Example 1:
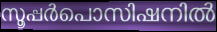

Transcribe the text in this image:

സൂപ്പർപൊസിഷനിൽ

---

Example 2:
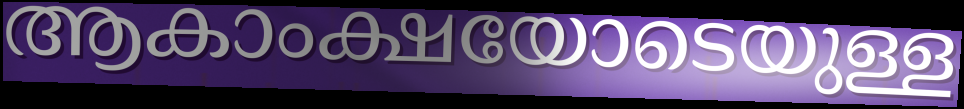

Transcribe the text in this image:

ആകാംക്ഷയോടെയുള്ള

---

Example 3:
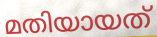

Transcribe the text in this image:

മതിയായത്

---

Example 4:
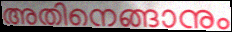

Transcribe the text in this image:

അതിനെങ്ങാനും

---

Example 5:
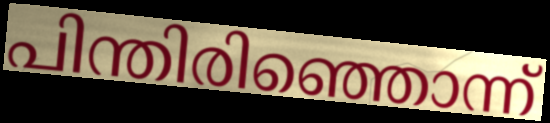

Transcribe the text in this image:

പിന്തിരിഞ്ഞൊന്ന്